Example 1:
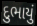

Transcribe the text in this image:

દુભાયું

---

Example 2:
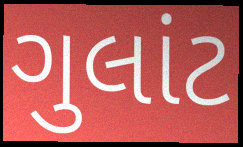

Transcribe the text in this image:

ગુલાંટ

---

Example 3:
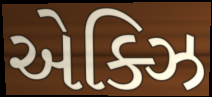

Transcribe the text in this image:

એક્ઝિ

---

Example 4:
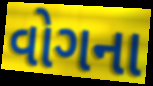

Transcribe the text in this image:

વોગના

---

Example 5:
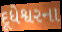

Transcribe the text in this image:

દૂધેશ્વરના